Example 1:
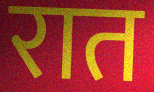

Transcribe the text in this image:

रात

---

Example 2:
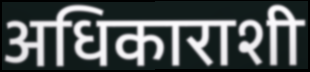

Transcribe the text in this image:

अधिकाराशी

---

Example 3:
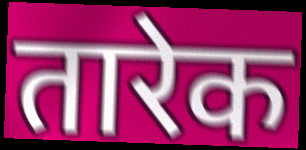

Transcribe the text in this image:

तारेक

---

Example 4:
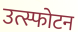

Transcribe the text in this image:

उत्स्फोटन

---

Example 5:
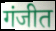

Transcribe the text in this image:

गंजीत